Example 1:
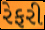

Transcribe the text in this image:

રેફરી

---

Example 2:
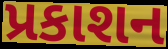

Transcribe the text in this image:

પ્રકાશન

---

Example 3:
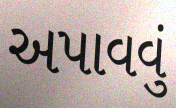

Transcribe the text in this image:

અપાવવું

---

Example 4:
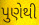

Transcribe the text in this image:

પુણેથી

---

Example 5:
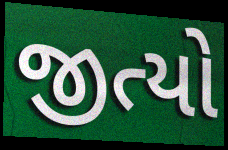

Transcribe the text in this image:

જીત્યો